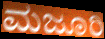
ಮಜೂರಿ